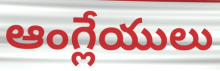
ఆంగ్లేయులు